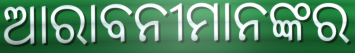
ଆରାବନୀମାନଙ୍କର